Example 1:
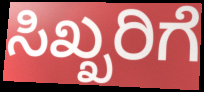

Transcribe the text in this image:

ಸಿಖ್ಖರಿಗೆ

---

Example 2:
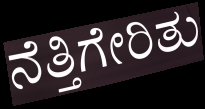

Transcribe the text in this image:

ನೆತ್ತಿಗೇರಿತು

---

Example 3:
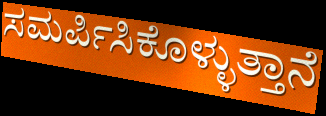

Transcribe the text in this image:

ಸಮರ್ಪಿಸಿಕೊಳ್ಳುತ್ತಾನೆ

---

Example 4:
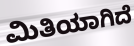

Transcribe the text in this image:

ಮಿತಿಯಾಗಿದೆ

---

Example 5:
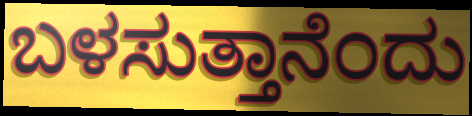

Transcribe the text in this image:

ಬಳಸುತ್ತಾನೆಂದು